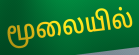
மூலையில்